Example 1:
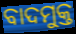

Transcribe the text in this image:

ବାଦମୁକ୍ତ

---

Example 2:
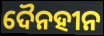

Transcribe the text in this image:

ଦୈନହୀନ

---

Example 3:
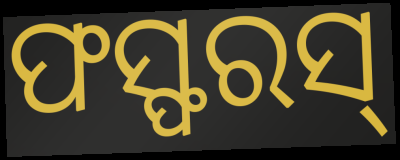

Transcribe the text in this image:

ଫସ୍ଫରସ୍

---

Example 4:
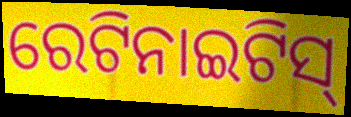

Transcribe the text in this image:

ରେଟିନାଇଟିସ୍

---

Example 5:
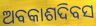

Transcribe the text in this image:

ଅବକାଶଦିବସ